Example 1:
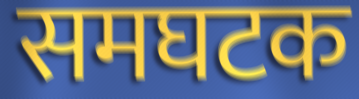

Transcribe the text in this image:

समघटक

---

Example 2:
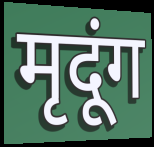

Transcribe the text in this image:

मृदूंग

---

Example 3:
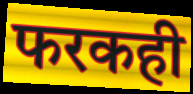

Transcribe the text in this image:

फरकही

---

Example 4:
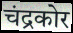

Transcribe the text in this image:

चंद्रकोर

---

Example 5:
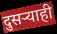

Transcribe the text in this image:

दुसऱ्याही